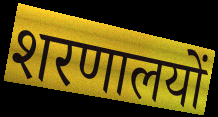
शरणालयों